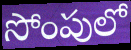
సోంపులో